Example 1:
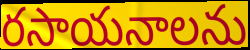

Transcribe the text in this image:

రసాయనాలను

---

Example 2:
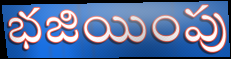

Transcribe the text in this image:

భజియింపు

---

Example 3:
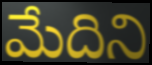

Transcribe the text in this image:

మేదిని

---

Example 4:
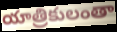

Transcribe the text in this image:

యాత్రికులంతా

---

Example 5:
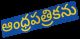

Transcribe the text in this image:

ఆంధ్రపత్రికను